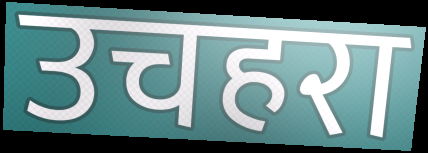
उचहरा